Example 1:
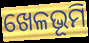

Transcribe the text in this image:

ଖେଳଭୂମି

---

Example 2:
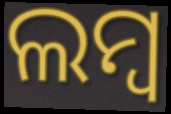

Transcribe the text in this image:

ଲମ୍ୱ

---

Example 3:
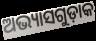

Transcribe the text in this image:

ଅଭ୍ୟାସଗୁଡ଼ାକ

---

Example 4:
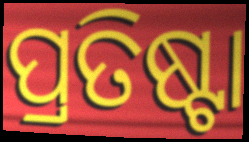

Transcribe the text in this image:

ପ୍ରତିଷ୍ଟା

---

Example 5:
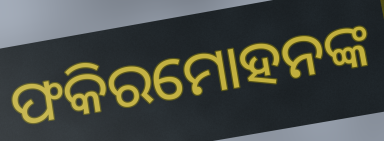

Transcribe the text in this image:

ଫକିରମୋହନଙ୍କ